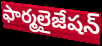
ఫార్మలైజేషన్